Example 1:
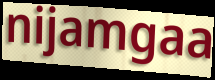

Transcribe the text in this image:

nijamgaa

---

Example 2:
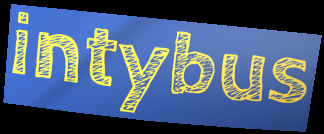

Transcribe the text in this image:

intybus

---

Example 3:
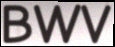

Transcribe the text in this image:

BWV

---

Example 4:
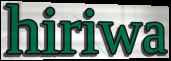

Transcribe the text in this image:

hiriwa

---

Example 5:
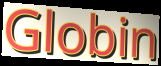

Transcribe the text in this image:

Globin